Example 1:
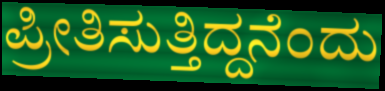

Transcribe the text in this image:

ಪ್ರೀತಿಸುತ್ತಿದ್ದನೆಂದು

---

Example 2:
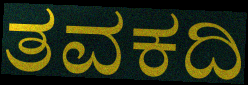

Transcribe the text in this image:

ತವಕದಿ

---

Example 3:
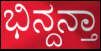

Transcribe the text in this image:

ಭಿನ್ದನ್ತಾ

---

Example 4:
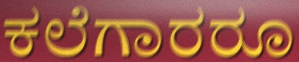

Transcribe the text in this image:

ಕಲೆಗಾರರೂ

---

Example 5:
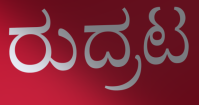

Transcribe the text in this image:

ರುದ್ರಟ